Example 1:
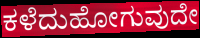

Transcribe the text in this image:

ಕಳೆದುಹೋಗುವುದೇ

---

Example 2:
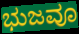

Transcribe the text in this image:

ಭುಜವೂ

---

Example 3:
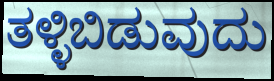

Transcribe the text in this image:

ತಳ್ಳಿಬಿಡುವುದು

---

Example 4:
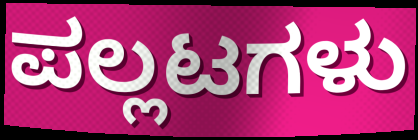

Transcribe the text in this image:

ಪಲ್ಲಟಗಳು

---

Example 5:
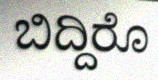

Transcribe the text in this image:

ಬಿದ್ದಿರೊ